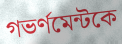
গভর্ণমেন্টকে